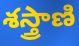
శస్త్రాణి